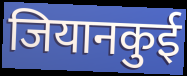
जियानकुई